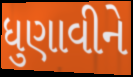
ધુણાવીને